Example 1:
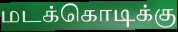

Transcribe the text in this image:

மடக்கொடிக்கு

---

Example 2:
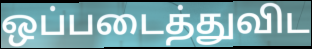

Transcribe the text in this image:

ஒப்படைத்துவிட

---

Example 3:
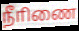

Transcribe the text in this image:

நீரிணை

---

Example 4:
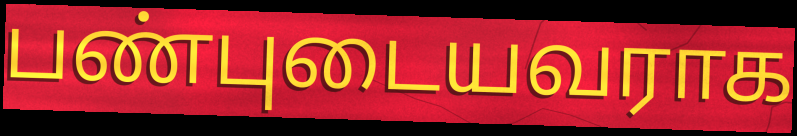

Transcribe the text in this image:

பண்புடையவராக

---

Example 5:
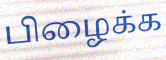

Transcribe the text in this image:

பிழைக்க